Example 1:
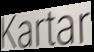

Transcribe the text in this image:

Kartar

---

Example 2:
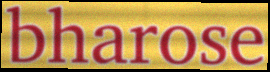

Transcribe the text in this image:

bharose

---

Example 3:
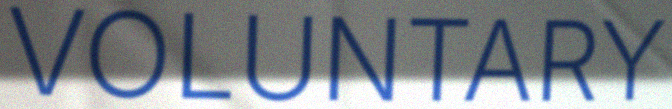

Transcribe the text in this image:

VOLUNTARY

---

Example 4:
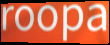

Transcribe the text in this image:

roopa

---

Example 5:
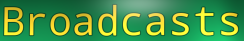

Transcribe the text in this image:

Broadcasts